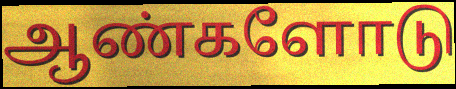
ஆண்களோடு